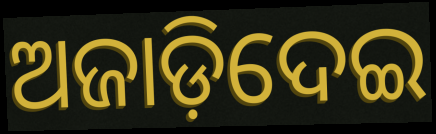
ଅଜାଡ଼ିଦେଇ